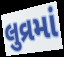
લુવ્રમાં